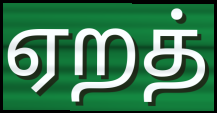
ஏறத்